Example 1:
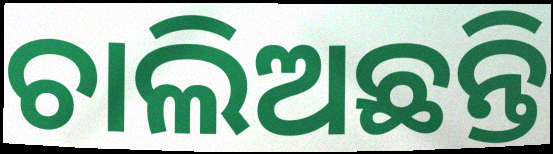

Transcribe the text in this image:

ଚାଲିଅଛନ୍ତି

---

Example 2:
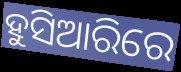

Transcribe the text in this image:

ହୁସିଆରିରେ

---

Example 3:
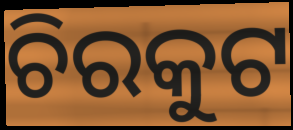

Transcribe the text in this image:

ଚିରକୁଟ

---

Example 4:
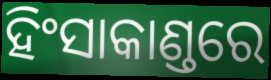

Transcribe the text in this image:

ହିଂସାକାଣ୍ଡରେ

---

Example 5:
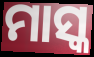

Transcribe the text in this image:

ମାସ୍କ